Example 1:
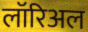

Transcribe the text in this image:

लॉरिअल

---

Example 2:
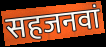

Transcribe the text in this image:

सहजनवां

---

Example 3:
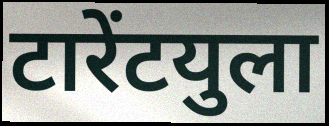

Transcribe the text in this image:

टारेंटयुला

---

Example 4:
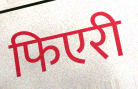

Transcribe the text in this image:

फिएरी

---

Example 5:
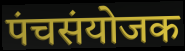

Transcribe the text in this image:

पंचसंयोजक